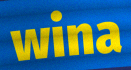
wina